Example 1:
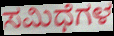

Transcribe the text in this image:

ಸಮಿಧೆಗಳ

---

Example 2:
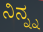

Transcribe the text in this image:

ನಿನ್ನ್ನ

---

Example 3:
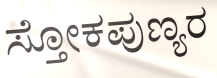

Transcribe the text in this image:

ಸ್ತೋಕಪುಣ್ಯರ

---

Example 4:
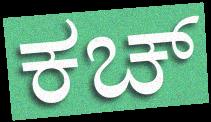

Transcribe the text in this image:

ಕಚ್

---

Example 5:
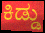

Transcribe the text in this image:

ಕಿಡ್ಡು